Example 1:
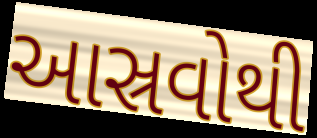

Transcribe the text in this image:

આસ્રવોથી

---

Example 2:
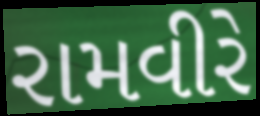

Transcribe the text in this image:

રામવીરે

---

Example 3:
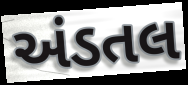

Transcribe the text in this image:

અંડતલ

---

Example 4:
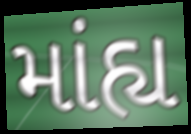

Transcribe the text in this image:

માંહ્ય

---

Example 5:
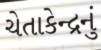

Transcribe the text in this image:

ચેતાકેન્દ્રનું